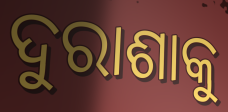
ଦୁରାଶାକୁ